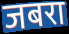
जबरा